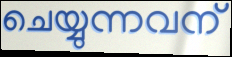
ചെയ്യുന്നവന്